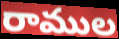
రాముల